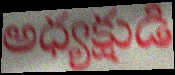
అధ్యక్షుడి